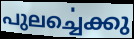
പുലൎച്ചെക്കു